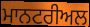
ਮਾਨਟਰੀਅਲ